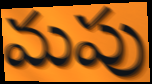
మపు